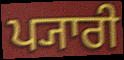
ਪ੍ਯਾਰੀ